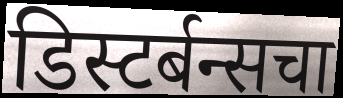
डिस्टर्बन्सचा